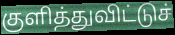
குளித்துவிட்டுச்